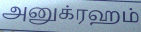
அனுக்ரஹம்